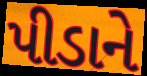
પીડાને